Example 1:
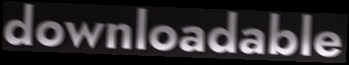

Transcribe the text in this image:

downloadable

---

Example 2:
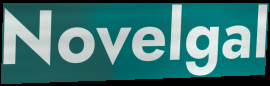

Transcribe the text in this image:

Novelgal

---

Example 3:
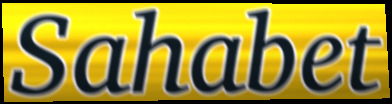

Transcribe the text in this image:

Sahabet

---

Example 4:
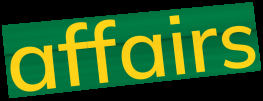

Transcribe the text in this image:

affairs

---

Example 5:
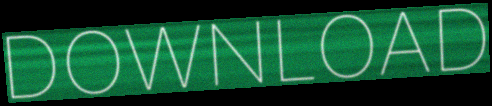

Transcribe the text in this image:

DOWNLOAD